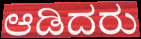
ಆಡಿದರು